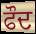
ਫੌਦ